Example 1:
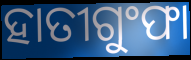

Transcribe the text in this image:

ହାତୀଗୁଂଫା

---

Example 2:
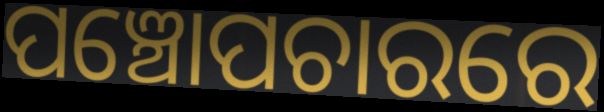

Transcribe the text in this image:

ପଞ୍ଚୋପଚାରରେ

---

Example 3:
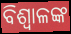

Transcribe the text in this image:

ବିଶ୍ୱାଳଙ୍କ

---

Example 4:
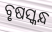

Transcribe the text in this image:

ବୃଷସ୍କନ୍ଧ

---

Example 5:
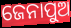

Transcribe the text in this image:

ଜେନାପୁଅ